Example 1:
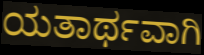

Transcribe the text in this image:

ಯತಾರ್ಥವಾಗಿ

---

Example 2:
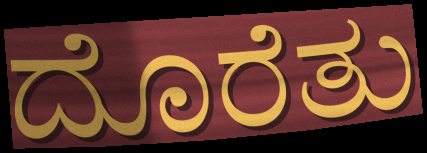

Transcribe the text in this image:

ದೊರೆತು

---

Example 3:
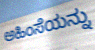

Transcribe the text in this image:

ಅಹಿಂಸೆಯನ್ನು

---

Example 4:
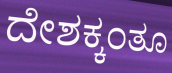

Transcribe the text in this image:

ದೇಶಕ್ಕಂತೂ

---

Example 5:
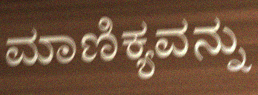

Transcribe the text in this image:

ಮಾಣಿಕ್ಯವನ್ನು